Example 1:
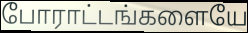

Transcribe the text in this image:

போராட்டங்களையே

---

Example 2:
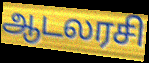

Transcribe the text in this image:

ஆடலரசி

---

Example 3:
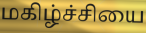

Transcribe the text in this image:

மகிழ்ச்சியை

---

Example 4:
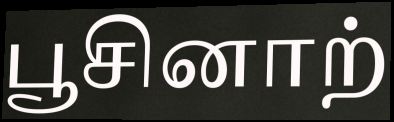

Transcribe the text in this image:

பூசினாற்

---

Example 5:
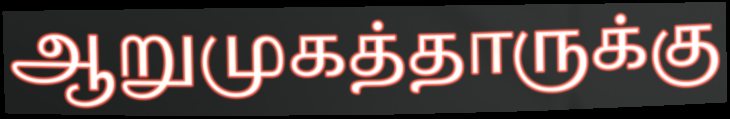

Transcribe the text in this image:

ஆறுமுகத்தாருக்கு